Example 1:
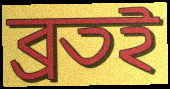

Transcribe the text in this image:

ব্রতই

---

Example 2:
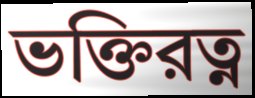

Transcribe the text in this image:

ভক্তিরত্ন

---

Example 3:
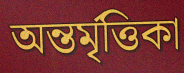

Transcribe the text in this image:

অন্তর্মৃত্তিকা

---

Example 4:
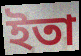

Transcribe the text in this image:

ইতা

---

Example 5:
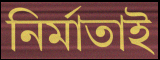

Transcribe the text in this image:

নির্মাতাই